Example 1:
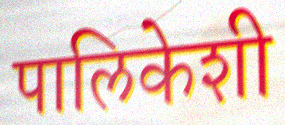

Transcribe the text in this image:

पालिकेशी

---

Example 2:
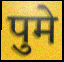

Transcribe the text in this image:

पुमे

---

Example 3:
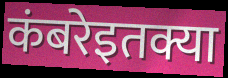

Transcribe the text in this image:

कंबरेइतक्या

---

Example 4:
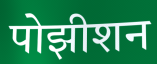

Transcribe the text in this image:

पोझीशन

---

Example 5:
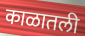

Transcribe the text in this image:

काळातली